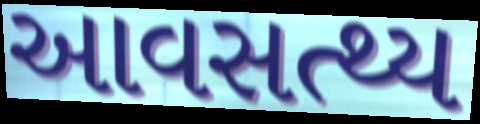
આવસત્થ્ય